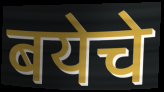
बयेचे